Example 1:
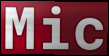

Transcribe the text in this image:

Mic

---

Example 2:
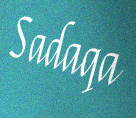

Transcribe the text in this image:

Sadaqa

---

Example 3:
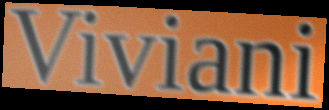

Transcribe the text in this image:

Viviani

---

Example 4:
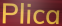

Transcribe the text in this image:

Plica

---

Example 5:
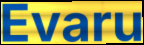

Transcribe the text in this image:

Evaru